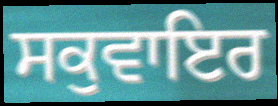
ਸਕੁਵਾਇਰ